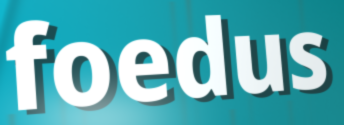
foedus